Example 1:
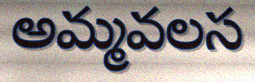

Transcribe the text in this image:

అమ్మవలస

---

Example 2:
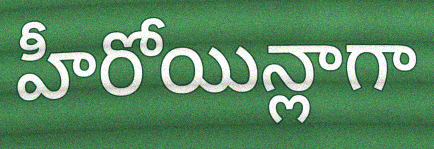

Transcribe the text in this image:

హీరోయిన్లాగా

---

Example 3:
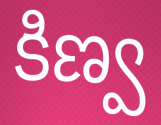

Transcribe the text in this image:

కిణ్వ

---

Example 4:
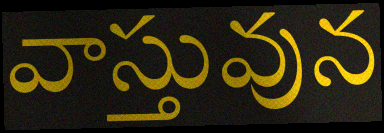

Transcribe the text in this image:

వాస్తువున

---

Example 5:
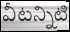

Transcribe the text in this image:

వీటన్నిటి